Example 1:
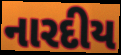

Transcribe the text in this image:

નારદીય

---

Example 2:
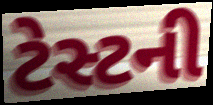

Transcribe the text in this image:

ટેસ્ટની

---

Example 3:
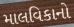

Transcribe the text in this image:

માલવિકાનો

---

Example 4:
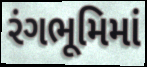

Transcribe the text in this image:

રંગભૂમિમાં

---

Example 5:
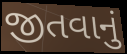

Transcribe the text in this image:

જીતવાનું